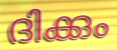
ദിക്കും